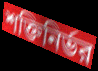
শক্তিনির্ভর